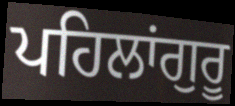
ਪਹਿਲਾਂਗੁਰੂ